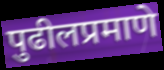
पुढीलप्रमाणे